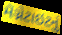
મૅગ્નેટાઇટનું